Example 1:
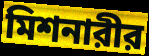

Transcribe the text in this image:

মিশনারীর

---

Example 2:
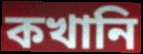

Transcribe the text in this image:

কখানি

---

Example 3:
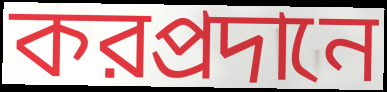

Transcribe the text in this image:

করপ্রদানে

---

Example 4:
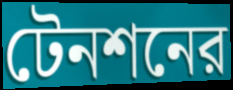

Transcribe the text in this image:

টেনশনের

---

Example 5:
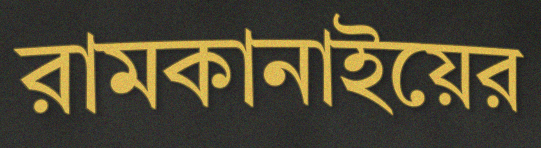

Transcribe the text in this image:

রামকানাইয়ের